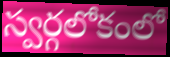
స్వర్గలోకంలో